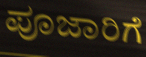
ಪೂಜಾರಿಗೆ